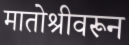
मातोश्रीवरून